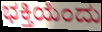
ಭಕ್ತಿಯೆಂದು